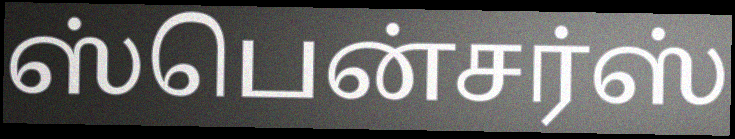
ஸ்பென்சர்ஸ்